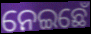
ନେଇଛେଁ